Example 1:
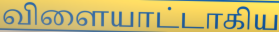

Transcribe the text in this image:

விளையாட்டாகிய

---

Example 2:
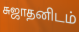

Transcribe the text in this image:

சுஜாதனிடம்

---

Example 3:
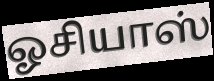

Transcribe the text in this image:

ஓசியாஸ்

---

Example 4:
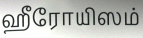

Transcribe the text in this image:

ஹீரோயிஸம்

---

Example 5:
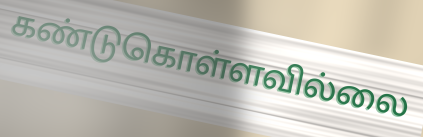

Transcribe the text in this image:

கண்டுகொள்ளவில்லை